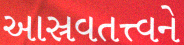
આસ્રવતત્ત્વને